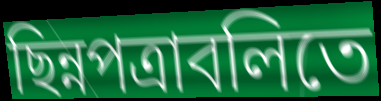
ছিন্নপত্রাবলিতে